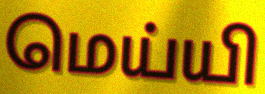
மெய்யி